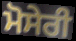
ਮੋਸੇਰੀ